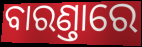
ବାରଣ୍ତାରେ